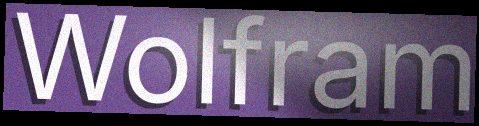
Wolfram